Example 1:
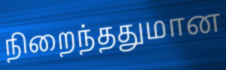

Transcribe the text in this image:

நிறைந்ததுமான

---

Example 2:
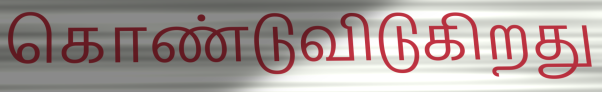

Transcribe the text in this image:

கொண்டுவிடுகிறது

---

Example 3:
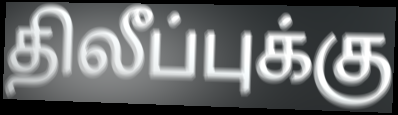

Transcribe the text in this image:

திலீப்புக்கு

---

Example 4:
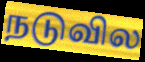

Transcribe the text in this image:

நடுவில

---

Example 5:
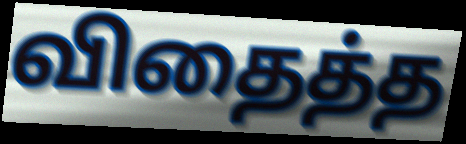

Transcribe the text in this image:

விதைத்த